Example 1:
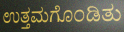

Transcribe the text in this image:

ಉತ್ತಮಗೊಂಡಿತು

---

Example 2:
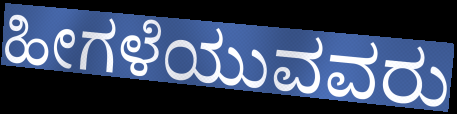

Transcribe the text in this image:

ಹೀಗಳೆಯುವವರು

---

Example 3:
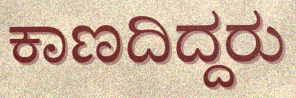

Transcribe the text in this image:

ಕಾಣದಿದ್ದರು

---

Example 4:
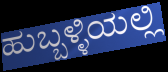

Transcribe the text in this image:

ಹುಬ್ಬಳ್ಳಿಯಲ್ಲಿ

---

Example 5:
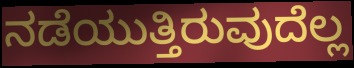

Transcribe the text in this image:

ನಡೆಯುತ್ತಿರುವುದೆಲ್ಲ